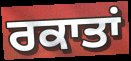
ਰਕਾਤਾਂ